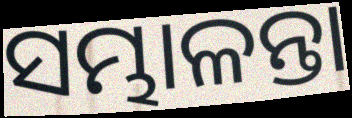
ସମ୍ଭାଳନ୍ତା